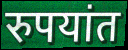
रुपयांत